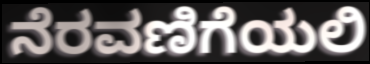
ನೆರವಣಿಗೆಯಲಿ